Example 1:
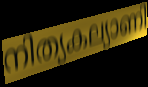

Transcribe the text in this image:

നിത്യകല്യാണി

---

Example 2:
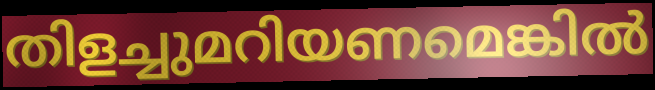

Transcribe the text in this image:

തിളച്ചുമറിയണമെങ്കിൽ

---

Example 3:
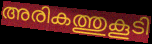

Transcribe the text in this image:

അരികത്തുകൂടി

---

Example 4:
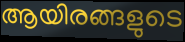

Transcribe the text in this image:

ആയിരങ്ങളുടെ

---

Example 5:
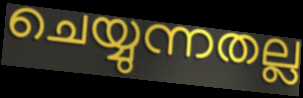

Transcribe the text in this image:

ചെയ്യുന്നതല്ല